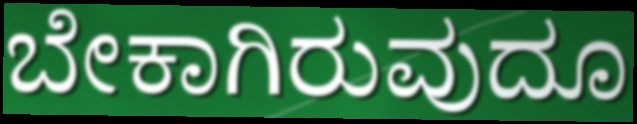
ಬೇಕಾಗಿರುವುದೂ